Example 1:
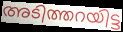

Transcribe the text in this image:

അടിത്തറയിട്ട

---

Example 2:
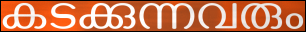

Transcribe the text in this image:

കടക്കുന്നവരും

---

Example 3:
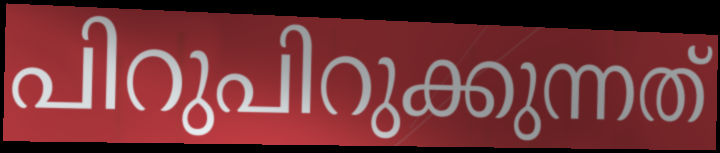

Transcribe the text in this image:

പിറുപിറുക്കുന്നത്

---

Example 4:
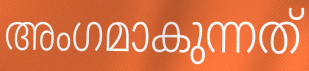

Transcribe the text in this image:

അംഗമാകുന്നത്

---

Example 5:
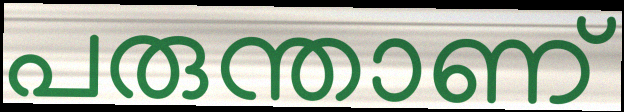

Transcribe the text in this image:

പരുന്താണ്